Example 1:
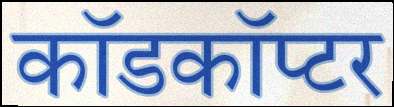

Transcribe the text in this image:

कॉडकॉप्टर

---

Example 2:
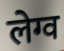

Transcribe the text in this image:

लेग्व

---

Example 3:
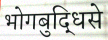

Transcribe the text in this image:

भोगबुद्धिसे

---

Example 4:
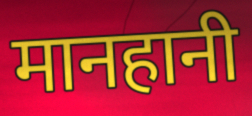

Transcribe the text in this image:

मानहानी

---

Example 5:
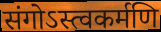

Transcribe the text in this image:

संगोऽस्त्वकर्मणि